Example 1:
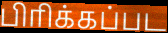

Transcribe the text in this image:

பிரிக்கப்பட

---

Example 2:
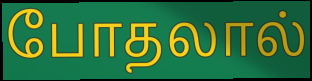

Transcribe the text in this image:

போதலால்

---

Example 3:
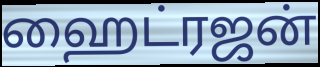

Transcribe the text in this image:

ஹைட்ரஜன்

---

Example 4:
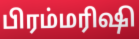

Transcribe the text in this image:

பிரம்மரிஷி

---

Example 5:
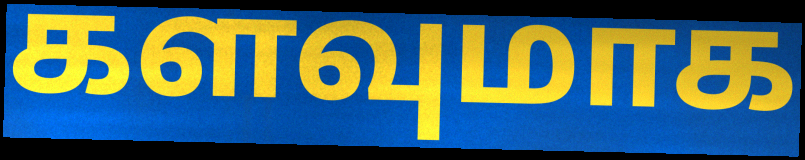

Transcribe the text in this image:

களவுமாக